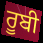
ਰੂਬੀ